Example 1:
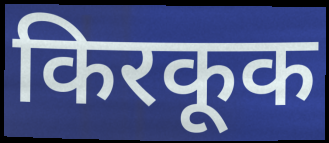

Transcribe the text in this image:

किरकूक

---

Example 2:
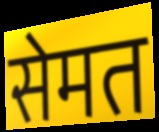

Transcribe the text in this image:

सेमत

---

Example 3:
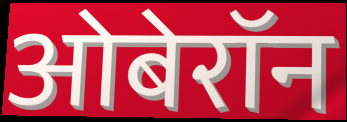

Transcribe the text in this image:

ओबेरॉन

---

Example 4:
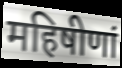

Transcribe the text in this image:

महिषीणां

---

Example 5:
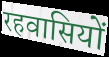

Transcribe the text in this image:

रहवासियों